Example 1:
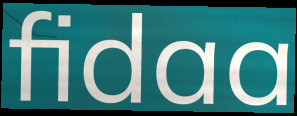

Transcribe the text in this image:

fidaa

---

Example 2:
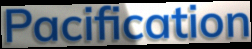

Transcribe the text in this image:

Pacification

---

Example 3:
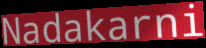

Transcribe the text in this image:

Nadakarni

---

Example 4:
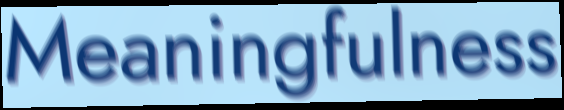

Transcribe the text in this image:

Meaningfulness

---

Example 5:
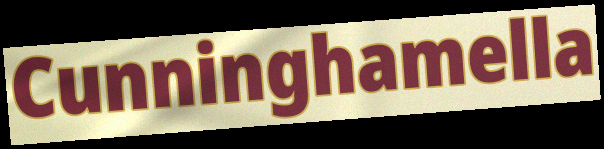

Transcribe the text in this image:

Cunninghamella